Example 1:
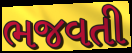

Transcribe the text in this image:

ભજવતી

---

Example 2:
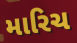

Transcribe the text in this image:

મારિચ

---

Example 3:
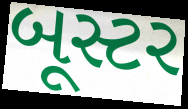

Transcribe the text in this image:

બૂસ્ટર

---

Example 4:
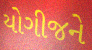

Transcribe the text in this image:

યોગીજને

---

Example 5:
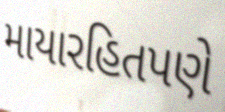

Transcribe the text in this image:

માયારહિતપણે